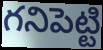
గనిపెట్టి